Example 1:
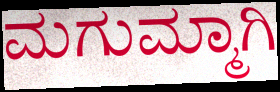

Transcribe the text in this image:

ಮಗುಮ್ಮಾಗಿ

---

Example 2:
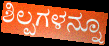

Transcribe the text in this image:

ಶಿಲ್ಪಗಳನ್ನೂ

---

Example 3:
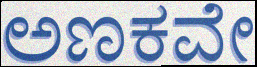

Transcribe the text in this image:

ಅಣಕವೇ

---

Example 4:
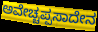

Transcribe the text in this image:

ಅವೇಚ್ಚಪ್ಪಸಾದೇನ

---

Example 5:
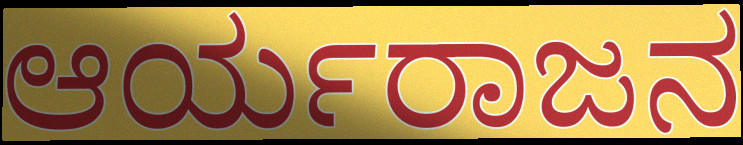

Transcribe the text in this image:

ಆರ್ಯರಾಜನ